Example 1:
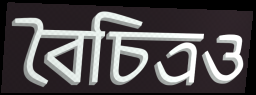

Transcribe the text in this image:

বৈচিত্রও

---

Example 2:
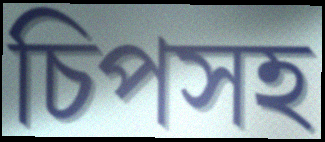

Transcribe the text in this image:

চিপসহ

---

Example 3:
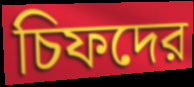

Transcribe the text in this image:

চিফদের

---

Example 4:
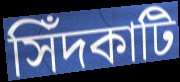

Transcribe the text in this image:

সিঁদকাটি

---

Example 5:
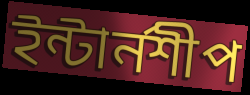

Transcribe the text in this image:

ইন্টার্নশীপ